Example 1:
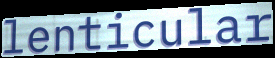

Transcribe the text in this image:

lenticular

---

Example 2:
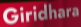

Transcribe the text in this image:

Giridhara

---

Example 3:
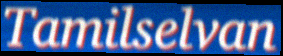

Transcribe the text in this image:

Tamilselvan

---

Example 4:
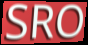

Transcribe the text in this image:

SRO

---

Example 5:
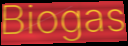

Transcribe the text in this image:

Biogas